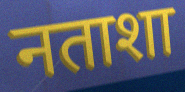
नताशा